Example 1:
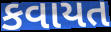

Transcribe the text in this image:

કવાયત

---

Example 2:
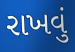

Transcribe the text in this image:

રાખવું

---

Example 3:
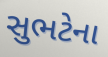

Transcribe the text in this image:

સુભટેના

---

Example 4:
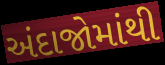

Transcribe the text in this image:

અંદાજોમાંથી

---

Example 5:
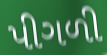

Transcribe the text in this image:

પીગળી